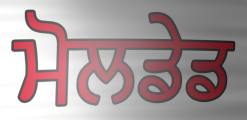
ਮੋਲਡੇਡ